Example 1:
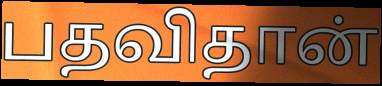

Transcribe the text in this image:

பதவிதான்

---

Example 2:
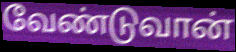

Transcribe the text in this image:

வேண்டுவான்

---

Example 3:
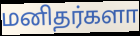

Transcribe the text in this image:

மனிதர்களா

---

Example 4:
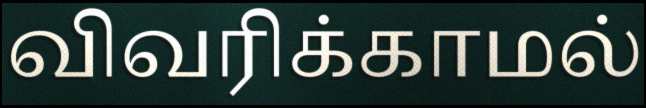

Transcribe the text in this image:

விவரிக்காமல்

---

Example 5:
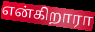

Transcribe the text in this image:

என்கிறாரா